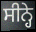
ਸੀਨ੍ਹੇ